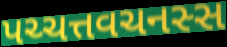
પચ્ચત્તવચનસ્સ